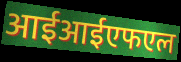
आईआईएफएल